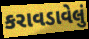
કરાવડાવેલું